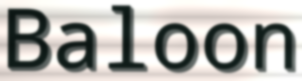
Baloon